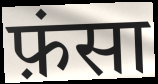
फ़ंसा